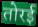
तोरई